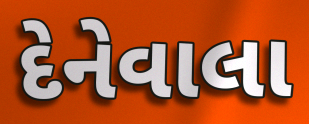
દેનેવાલા